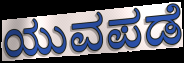
ಯುವಪಡೆ